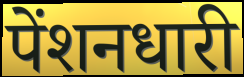
पेंशनधारी